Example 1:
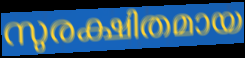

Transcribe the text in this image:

സുരക്ഷിതമായ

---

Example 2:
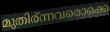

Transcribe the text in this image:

മുതിര്ന്നവരൊക്കെ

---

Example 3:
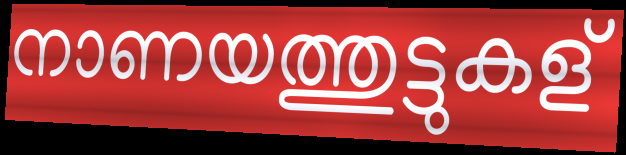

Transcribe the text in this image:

നാണയത്തുട്ടുകള്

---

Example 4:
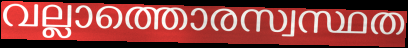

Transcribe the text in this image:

വല്ലാത്തൊരസ്വസ്ഥത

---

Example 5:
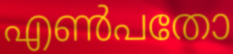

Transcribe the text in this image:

എൺപതോ